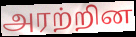
அரற்றின